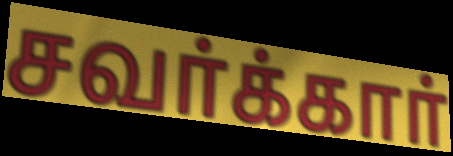
சவர்க்கார்